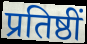
प्रतिष्ठीं